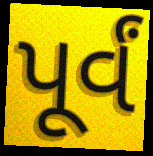
પૂર્વં